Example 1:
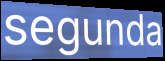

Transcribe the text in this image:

segunda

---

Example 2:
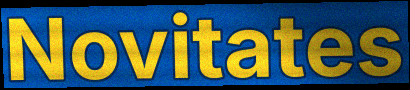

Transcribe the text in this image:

Novitates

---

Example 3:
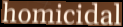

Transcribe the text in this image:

homicidal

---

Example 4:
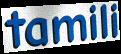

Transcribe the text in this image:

tamili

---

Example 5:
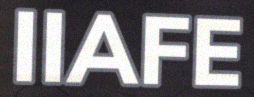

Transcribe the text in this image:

IIAFE